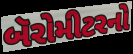
બૅરોમીટરનો